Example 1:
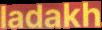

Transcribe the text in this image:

ladakh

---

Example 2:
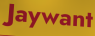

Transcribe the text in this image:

Jaywant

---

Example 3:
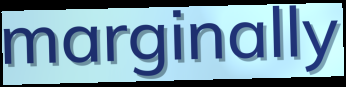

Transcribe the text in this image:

marginally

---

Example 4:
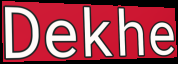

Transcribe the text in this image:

Dekhe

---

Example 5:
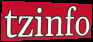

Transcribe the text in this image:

tzinfo